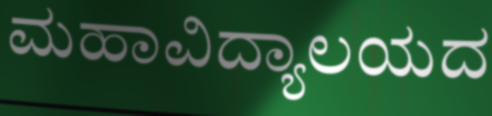
ಮಹಾವಿದ್ಯಾಲಯದ